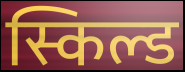
स्किल्ड